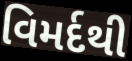
વિમર્દથી